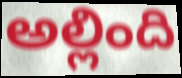
అల్లింది